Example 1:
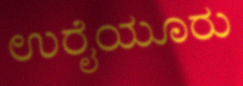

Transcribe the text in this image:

ಉರೈಯೂರು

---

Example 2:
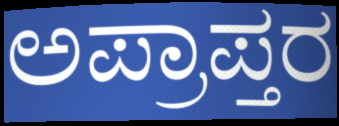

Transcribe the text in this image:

ಅಪ್ರಾಪ್ತರ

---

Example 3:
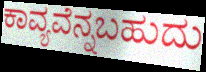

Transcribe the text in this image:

ಕಾವ್ಯವೆನ್ನಬಹುದು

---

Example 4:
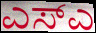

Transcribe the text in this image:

ಎಸ್ಎ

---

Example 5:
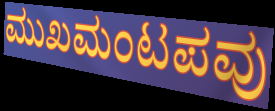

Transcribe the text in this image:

ಮುಖಮಂಟಪವು